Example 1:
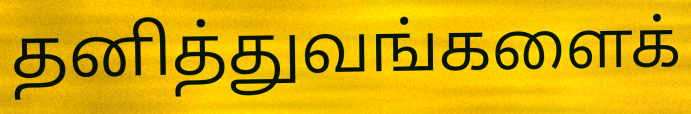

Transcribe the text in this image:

தனித்துவங்களைக்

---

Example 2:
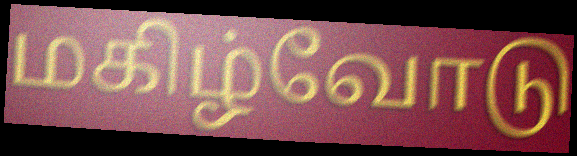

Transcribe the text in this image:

மகிழ்வோடு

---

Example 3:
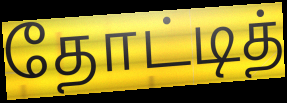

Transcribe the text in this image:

தோட்டித்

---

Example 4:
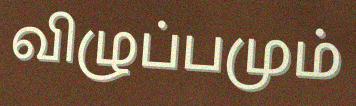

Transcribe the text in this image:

விழுப்பமும்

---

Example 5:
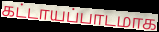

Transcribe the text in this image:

கட்டாயப்பாடமாக